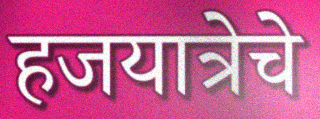
हजयात्रेचे